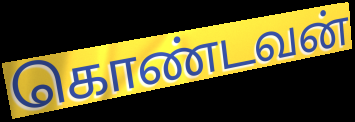
கொண்டவன்